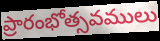
ప్రారంభోత్సవములు